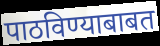
पाठविण्याबाबत